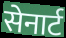
सेनार्ट